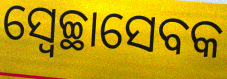
ସ୍ୱେଚ୍ଛାସେବକ